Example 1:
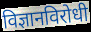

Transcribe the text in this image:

विज्ञानविरोधी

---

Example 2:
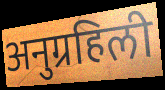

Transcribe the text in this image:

अनुग्रहिली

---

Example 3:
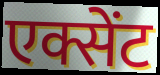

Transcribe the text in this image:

एक्सेंट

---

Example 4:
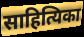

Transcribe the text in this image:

साहित्यिका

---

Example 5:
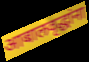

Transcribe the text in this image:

आबालवृद्धांना